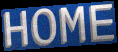
HOME